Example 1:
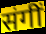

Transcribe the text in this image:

संगीं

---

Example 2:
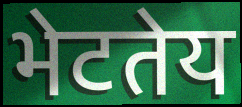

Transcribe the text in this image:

भेटतेय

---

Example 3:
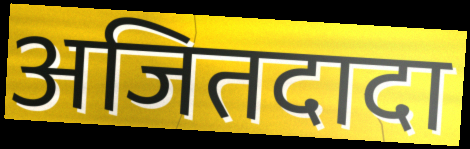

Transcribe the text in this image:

अजितदादा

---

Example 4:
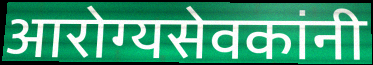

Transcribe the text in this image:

आरोग्यसेवकांनी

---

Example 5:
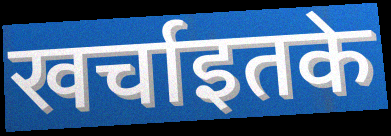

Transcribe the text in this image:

खर्चाइतके